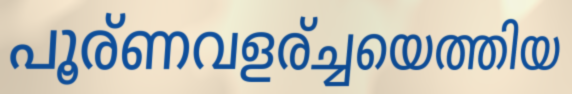
പൂര്ണവളര്ച്ചയെത്തിയ